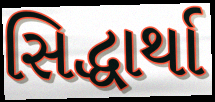
સિદ્ધાર્થા